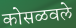
कोसळवले